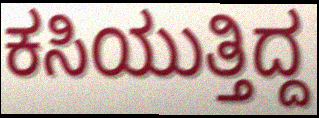
ಕಸಿಯುತ್ತಿದ್ದ